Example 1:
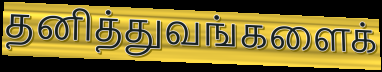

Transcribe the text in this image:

தனித்துவங்களைக்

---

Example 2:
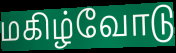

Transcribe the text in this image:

மகிழ்வோடு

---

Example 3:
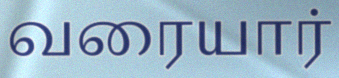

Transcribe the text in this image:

வரையார்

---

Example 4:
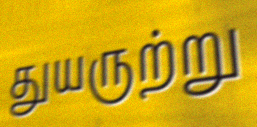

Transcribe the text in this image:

துயருற்று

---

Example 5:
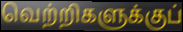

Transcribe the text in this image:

வெற்றிகளுக்குப்